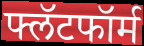
फ्लॅटफॉर्म